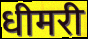
धीमरी